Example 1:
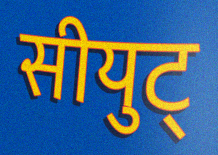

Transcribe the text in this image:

सीयुट्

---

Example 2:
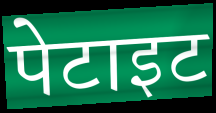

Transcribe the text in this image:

पेटाइट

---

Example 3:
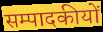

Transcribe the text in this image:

सम्पादकीयों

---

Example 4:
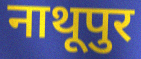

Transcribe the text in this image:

नाथूपुर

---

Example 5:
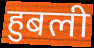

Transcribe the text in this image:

हुबली